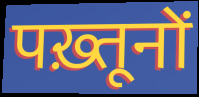
पख़्तूनों